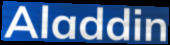
Aladdin